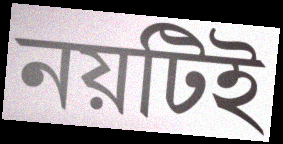
নয়টিই